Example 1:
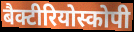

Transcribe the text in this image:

बैक्टीरियोस्कोपी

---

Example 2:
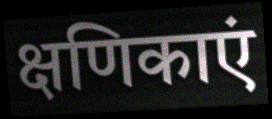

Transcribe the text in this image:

क्षणिकाएं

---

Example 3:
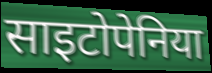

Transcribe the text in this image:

साइटोपेनिया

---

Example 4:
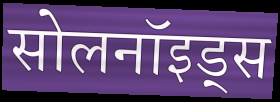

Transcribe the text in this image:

सोलनॉइड्स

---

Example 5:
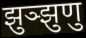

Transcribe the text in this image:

झुञ्झुणु